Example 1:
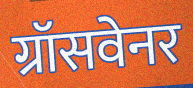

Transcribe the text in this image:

ग्रॉसवेनर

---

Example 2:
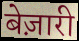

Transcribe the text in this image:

बेज़ारी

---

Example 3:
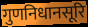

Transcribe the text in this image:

गुणनिधानसूरि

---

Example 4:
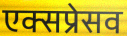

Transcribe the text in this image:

एक्सप्रेसव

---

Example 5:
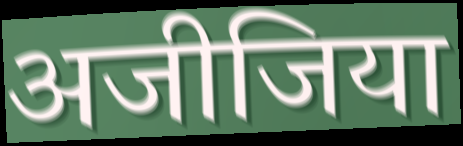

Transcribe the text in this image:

अजीजिया